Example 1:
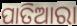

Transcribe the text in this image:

ପାତିଆରା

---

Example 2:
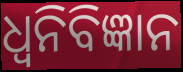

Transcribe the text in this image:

ଧ୍ୱନିବିଜ୍ଞାନ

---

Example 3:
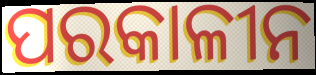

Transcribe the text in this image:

ପରକାଳୀନ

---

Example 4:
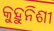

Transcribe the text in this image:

କୁହୁନିଶୀ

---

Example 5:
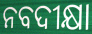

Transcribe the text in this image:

ନବଦୀକ୍ଷା